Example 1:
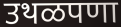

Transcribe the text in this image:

उथळपणा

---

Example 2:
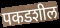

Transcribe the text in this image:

पकडशील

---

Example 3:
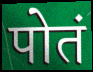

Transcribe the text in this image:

पोतं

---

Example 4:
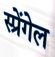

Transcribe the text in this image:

स्प्रेंगेल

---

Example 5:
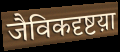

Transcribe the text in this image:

जैविकदृष्टय़ा